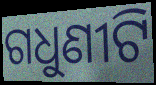
ଗଧୁଣୀଟି